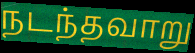
நடந்தவாறு